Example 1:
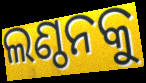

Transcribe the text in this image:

ଲଣ୍ଠନକୁ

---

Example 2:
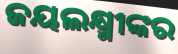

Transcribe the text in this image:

ଜୟଲକ୍ଷ୍ମୀଙ୍କର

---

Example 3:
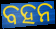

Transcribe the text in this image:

ବହନ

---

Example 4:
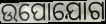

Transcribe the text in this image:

ଉପୋଯୋଗ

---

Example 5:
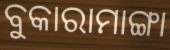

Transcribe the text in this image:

ବୁକାରାମାଙ୍ଗା